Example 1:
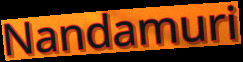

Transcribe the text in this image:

Nandamuri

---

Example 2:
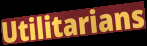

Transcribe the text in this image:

Utilitarians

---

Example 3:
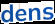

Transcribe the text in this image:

dens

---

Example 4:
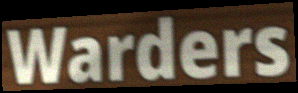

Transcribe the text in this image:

Warders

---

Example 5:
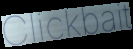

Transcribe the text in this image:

Clickbait